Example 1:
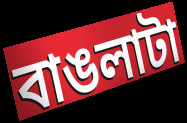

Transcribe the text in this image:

বাঙলাটা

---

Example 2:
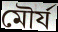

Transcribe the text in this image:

মৌর্য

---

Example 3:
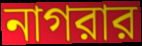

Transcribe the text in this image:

নাগরার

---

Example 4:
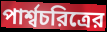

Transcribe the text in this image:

পার্শ্বচরিত্রের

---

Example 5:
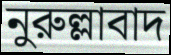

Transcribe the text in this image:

নুরুল্লাবাদ